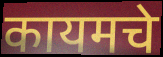
कायमचे